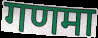
गणमा